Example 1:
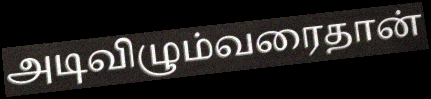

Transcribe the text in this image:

அடிவிழும்வரைதான்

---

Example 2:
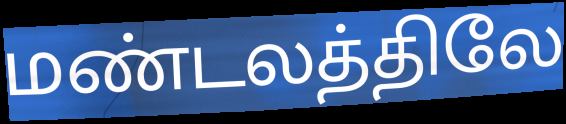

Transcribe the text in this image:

மண்டலத்திலே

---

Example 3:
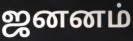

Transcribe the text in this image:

ஜனனம்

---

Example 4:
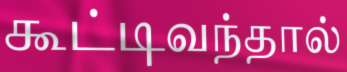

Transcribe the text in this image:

கூட்டிவந்தால்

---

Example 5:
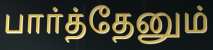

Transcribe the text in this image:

பார்த்தேனும்